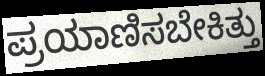
ಪ್ರಯಾಣಿಸಬೇಕಿತ್ತು